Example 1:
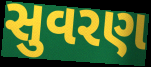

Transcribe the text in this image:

સુવરણ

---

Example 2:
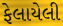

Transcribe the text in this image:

ફેલાયેલી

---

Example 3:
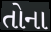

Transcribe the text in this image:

તોના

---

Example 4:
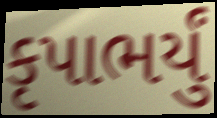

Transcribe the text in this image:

કૃપાભર્યું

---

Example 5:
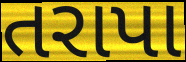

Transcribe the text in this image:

તરાપા